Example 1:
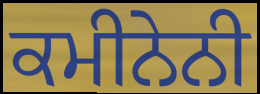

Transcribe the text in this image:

ਕਮੀਨੇਨੀ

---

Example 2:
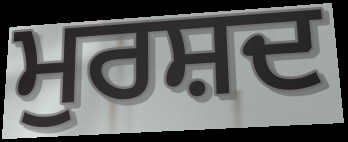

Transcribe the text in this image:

ਮੁਰਸ਼ਦ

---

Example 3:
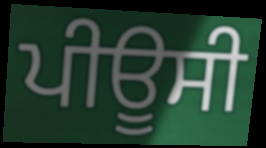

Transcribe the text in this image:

ਪੀਊਸੀ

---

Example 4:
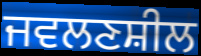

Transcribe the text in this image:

ਜਵਲਣਸ਼ੀਲ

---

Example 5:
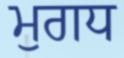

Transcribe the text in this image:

ਮੁਗਧ